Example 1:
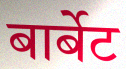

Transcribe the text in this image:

बार्बेट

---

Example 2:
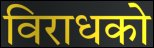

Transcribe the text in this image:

विराधको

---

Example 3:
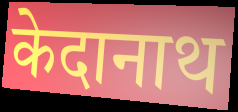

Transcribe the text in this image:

केदानाथ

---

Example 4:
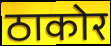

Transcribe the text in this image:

ठाकोर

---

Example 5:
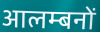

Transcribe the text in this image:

आलम्बनों